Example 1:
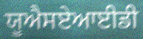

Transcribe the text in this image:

ਯੂਐਸਏਆਈਡੀ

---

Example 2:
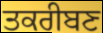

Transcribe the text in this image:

ਤਕਰੀਬਣ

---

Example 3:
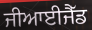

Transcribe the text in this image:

ਜੀਆਈਜੈੱਡ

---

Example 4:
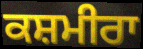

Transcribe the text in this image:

ਕਸ਼ਮੀਰਾ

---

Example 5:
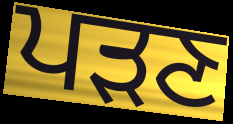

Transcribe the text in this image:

ਪੜਣ